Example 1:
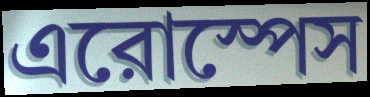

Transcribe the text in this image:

এরোস্পেস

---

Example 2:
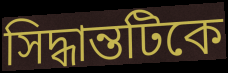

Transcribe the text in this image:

সিদ্ধান্তটিকে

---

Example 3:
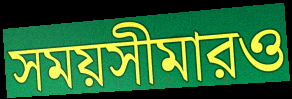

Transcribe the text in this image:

সময়সীমারও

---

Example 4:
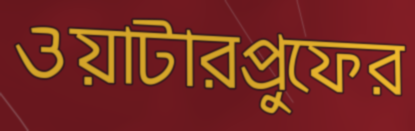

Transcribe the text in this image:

ওয়াটারপ্রুফের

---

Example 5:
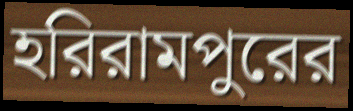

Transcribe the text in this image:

হরিরামপুরের